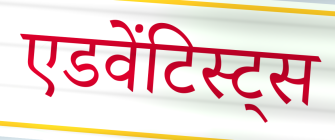
एडवेंटिस्ट्स